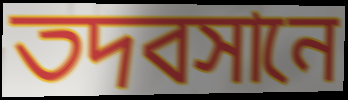
তদবসানে